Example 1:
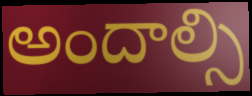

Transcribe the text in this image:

అందాల్సి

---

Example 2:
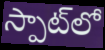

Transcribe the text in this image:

స్పాట్‌లో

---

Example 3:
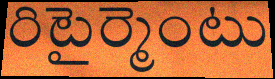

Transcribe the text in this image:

రిటైర్మెంటు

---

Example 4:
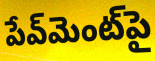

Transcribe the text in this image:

పేవ్‌మెంట్‌పై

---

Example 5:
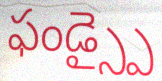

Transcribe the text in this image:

ఫండ్స్పై